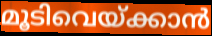
മൂടിവെയ്ക്കാൻ